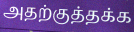
அதற்குத்தக்க